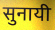
सुनायी